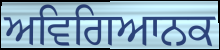
ਅਵਿਗਿਆਨਕ